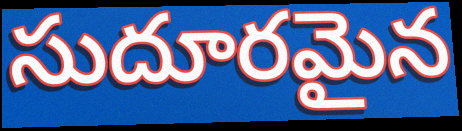
సుదూరమైన